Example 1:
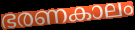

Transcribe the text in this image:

ഭരണകാലം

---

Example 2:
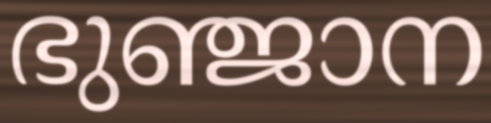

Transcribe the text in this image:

ഭുഞ്ജാന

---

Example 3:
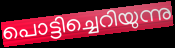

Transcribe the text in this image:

പൊട്ടിച്ചെറിയുന്നു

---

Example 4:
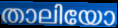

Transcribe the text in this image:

താലിയോ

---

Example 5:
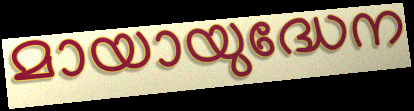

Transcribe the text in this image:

മായായുദ്ധേന